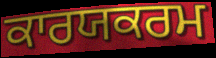
ਕਾਰਯਕਰਮ